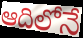
ఆదిలోనే